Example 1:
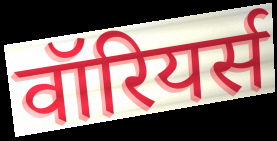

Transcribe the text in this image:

वॉरियर्स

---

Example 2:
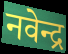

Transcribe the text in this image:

नवेन्द्र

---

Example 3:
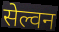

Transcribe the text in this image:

सेल्वन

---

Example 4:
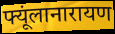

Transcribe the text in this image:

फ्यूंलानारायण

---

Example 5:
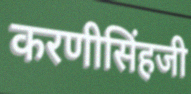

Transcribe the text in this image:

करणीसिंहजी